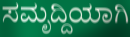
ಸಮೃದ್ದಿಯಾಗಿ